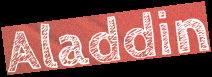
Aladdin